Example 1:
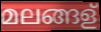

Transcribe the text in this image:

മലങ്ങള്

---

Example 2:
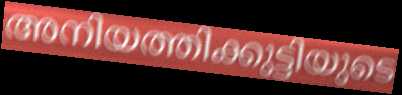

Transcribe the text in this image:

അനിയത്തിക്കുട്ടിയുടെ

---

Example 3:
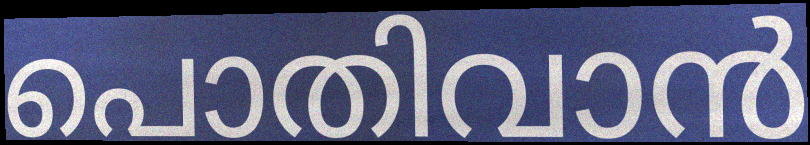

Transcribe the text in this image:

പൊതിവാൻ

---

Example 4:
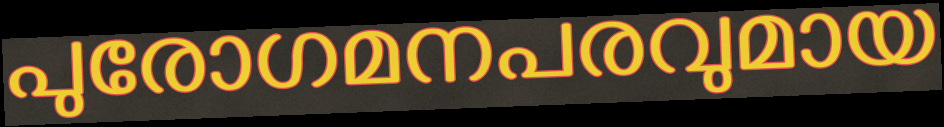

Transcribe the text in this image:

പുരോഗമനപരവുമായ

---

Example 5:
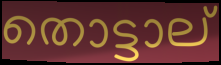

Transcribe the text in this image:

തൊട്ടാല്